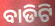
ବାଡିଟି